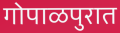
गोपाळपुरात